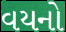
વયનો